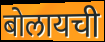
बोलायची